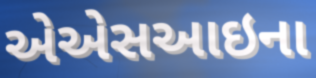
એએસઆઇના